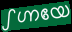
ഽഗ്നയേ